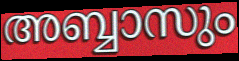
അബ്ബാസും